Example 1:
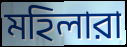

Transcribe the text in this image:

মহিলারা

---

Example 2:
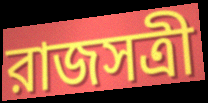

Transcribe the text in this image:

রাজসত্রী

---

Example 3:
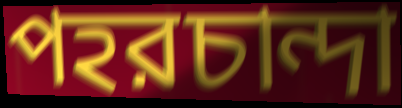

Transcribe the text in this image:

পহরচান্দা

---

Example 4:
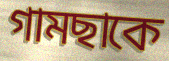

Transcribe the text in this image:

গামছাকে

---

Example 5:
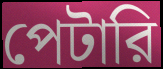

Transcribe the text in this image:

পেটারি